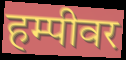
हम्पीवर